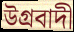
উগ্ৰবাদী